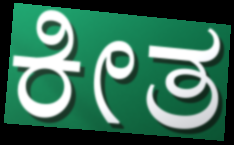
ಕೀತ